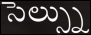
సెల్స్ను